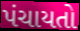
પંચાયતો